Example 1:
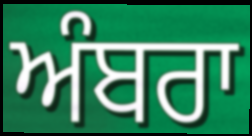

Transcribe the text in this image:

ਅੰਬਰਾ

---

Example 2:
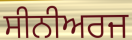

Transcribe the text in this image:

ਸੀਨੀਅਰਜ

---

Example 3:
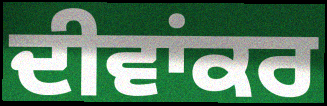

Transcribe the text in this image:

ਦੀਵਾਂਕਰ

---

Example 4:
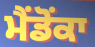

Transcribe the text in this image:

ਮੈਂਡੋਂਕਾ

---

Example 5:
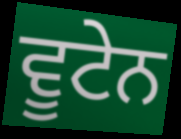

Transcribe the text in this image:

ਵੂਟੇਨ